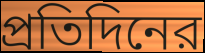
প্রতিদিনের